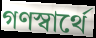
গণস্বার্থে